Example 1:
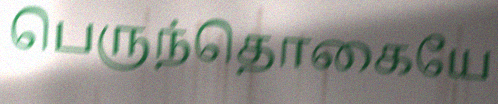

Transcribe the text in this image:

பெருந்தொகையே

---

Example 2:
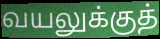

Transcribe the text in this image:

வயலுக்குத்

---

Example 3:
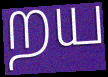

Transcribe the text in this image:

றய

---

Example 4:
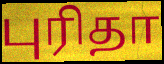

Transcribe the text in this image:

புரிதா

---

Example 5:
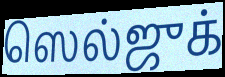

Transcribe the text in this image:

ஸெல்ஜுக்